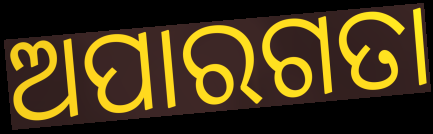
ଅପାରଗତା